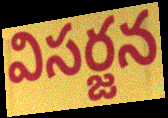
విసర్జన